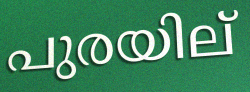
പുരയില്